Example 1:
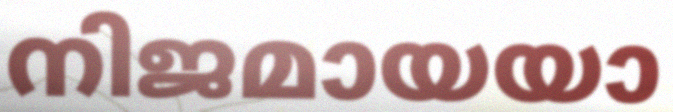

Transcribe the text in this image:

നിജമായയാ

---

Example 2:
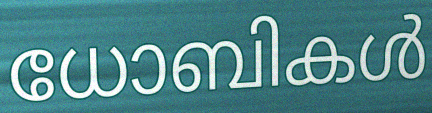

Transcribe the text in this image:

ധോബികൾ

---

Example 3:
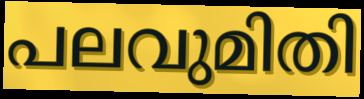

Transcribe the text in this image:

പലവുമിതി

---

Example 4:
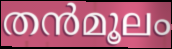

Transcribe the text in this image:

തൻമൂലം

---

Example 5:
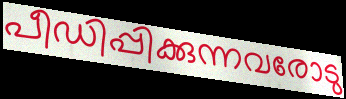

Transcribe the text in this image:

പീഡിപ്പിക്കുന്നവരോടു